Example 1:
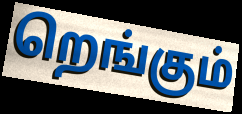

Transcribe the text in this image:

றெங்கும்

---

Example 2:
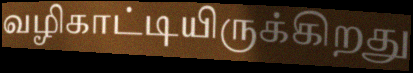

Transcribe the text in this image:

வழிகாட்டியிருக்கிறது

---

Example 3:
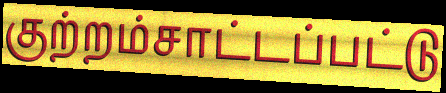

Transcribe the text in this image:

குற்றம்சாட்டப்பட்டு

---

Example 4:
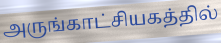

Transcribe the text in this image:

அருங்காட்சியகத்தில்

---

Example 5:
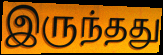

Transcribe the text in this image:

இருந்தது